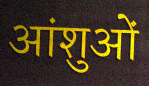
आंशुओं